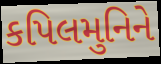
કપિલમુનિને